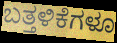
ಬತ್ತಳಿಕೆಗಳೂ